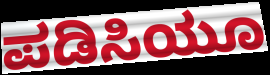
ಪಡಿಸಿಯೂ